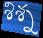
శిశ్న